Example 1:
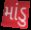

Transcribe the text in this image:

માંડુ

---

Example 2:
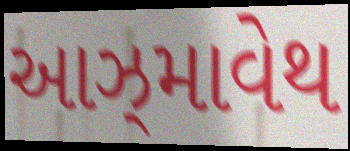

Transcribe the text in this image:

આઝ્માવેથ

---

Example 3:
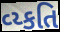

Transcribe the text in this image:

વ્ય્કતિ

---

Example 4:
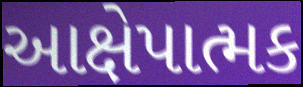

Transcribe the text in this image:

આક્ષેપાત્મક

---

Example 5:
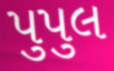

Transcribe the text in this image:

પુપુલ